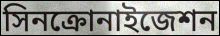
সিনক্রোনাইজেশন